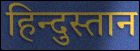
हिन्‍दुस्‍तान